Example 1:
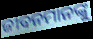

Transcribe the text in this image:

ଜୀବନମାନଙ୍କୁ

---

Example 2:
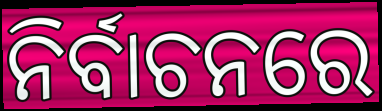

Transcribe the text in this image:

ନିର୍ବାଚନରେ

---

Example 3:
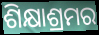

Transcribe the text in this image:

ଶିକ୍ଷାଶ୍ରମର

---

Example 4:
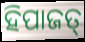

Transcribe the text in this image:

ହିପାଜତ୍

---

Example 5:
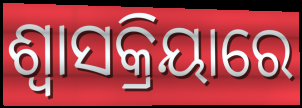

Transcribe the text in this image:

ଶ୍ୱାସକ୍ରିୟାରେ